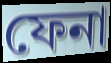
ফেনা